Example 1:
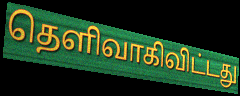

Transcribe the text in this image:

தெளிவாகிவிட்டது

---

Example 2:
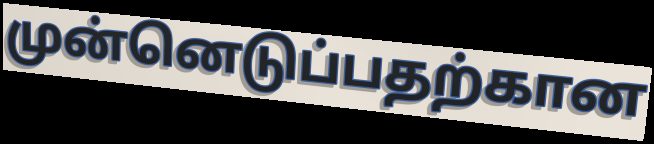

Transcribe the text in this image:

முன்னெடுப்பதற்கான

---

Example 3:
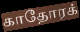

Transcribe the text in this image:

காதோரக்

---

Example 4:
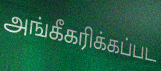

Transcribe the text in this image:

அங்கீகரிக்கப்பட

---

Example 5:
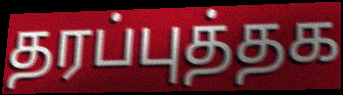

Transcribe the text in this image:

தரப்புத்தக